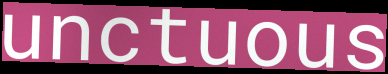
unctuous